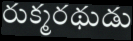
రుక్మరథుడు